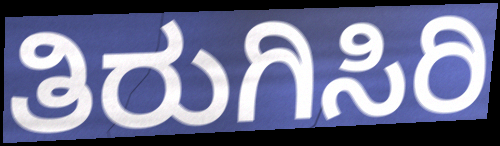
ತಿರುಗಿಸಿರಿ